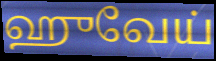
ஹுவேய்